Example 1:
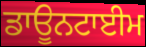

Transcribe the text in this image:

ਡਾਊਨਟਾਈਮ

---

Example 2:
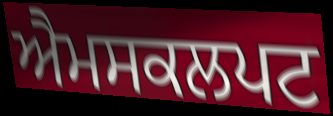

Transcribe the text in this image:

ਐਮਸਕਲਪਟ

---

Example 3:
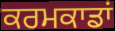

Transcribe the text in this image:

ਕਰਮਕਾਡਾਂ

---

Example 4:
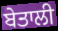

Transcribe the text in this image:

ਬੇਤਾਲੀ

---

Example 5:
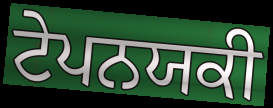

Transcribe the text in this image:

ਟੇਪਨਯਕੀ